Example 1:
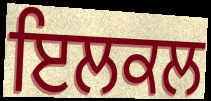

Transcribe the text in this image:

ਇਲਕਲ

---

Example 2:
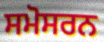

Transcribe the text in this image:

ਸਮੋਸਰਨ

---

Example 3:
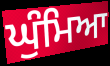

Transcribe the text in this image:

ਘੁੰਮਿਆ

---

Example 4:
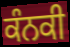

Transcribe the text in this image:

ਕੰਨਕੀ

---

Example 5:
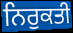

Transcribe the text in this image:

ਨਿਰੁਕਤੀ